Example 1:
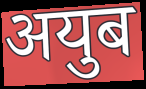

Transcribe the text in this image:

अयुब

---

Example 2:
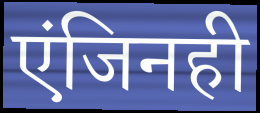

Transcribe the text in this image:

एंजिनही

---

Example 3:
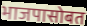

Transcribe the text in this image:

भाजपासोबत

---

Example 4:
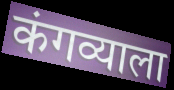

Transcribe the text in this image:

कंगव्याला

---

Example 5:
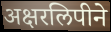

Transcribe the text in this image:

अक्षरलिपीने